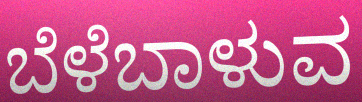
ಬೆಳೆಬಾಳುವ